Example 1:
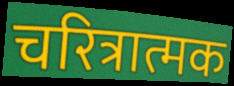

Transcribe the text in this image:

चरित्रात्मक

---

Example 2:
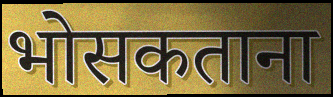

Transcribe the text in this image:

भोसकताना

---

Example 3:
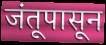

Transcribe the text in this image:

जंतूपासून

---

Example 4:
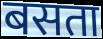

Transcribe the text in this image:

बसता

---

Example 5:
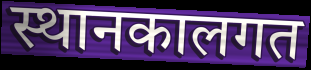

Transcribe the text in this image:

स्थानकालगत